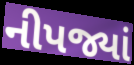
નીપજ્યાં